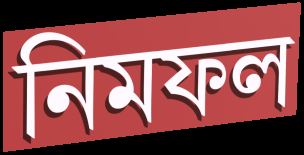
নিমফল